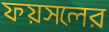
ফয়সলের